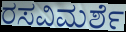
ರಸವಿಮರ್ಶೆ